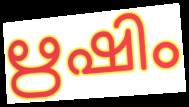
ഋഷിം